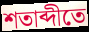
শতাব্দীতে